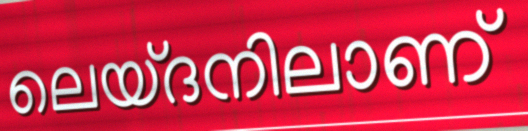
ലെയ്ദനിലാണ്